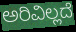
ಅರಿವಿಲ್ಲದೆ